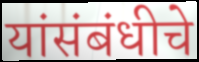
यांसंबंधीचे